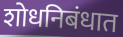
शोधनिबंधात